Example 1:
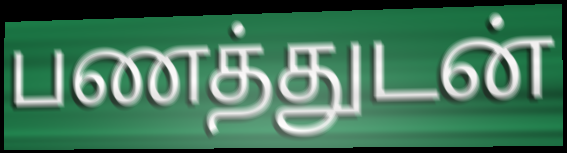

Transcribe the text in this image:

பணத்துடன்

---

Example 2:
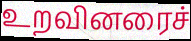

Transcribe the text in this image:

உறவினரைச்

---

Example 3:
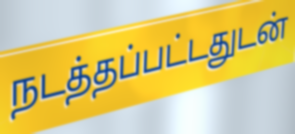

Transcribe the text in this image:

நடத்தப்பட்டதுடன்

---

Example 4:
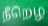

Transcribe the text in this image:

நீறெழ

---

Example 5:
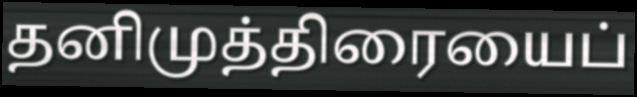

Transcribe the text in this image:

தனிமுத்திரையைப்